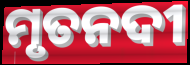
ମୃତନଦୀ